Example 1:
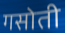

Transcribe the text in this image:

गसोती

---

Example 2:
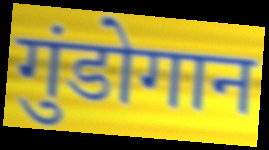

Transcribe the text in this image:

गुंडोगान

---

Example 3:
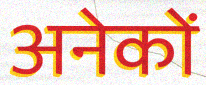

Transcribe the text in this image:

अनेकों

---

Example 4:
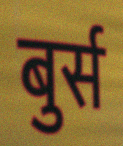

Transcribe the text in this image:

बुर्स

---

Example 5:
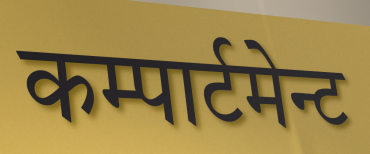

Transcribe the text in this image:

कम्पार्टमेन्ट